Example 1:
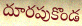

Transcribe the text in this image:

దూరపుకొండ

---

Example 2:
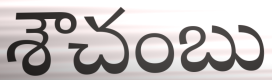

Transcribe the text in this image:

శౌచంబు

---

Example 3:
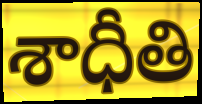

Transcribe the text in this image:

శాధీతి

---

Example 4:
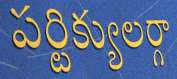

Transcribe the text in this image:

పర్టిక్యులర్గా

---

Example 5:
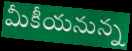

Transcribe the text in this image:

మీకీయనున్న